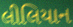
લીલિયાન